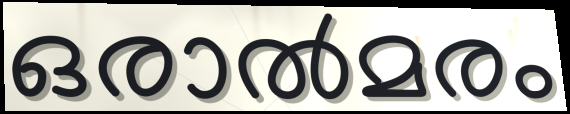
ഒരാൽമരം